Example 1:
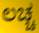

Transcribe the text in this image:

ಲಚ್ಚ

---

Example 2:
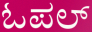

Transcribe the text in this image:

ಓಪಲ್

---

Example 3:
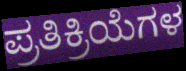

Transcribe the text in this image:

ಪ್ರತಿಕ್ರಿಯೆಗಳ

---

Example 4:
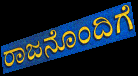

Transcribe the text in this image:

ರಾಜನೊಂದಿಗೆ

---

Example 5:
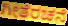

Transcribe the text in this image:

ಗೀತೆರಚನೆ